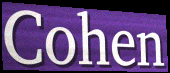
Cohen